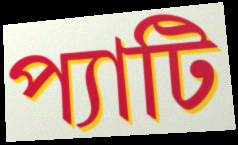
প্যাটি